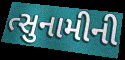
ત્સુનામીની